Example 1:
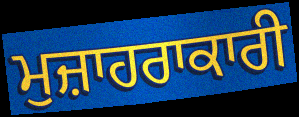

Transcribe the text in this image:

ਮੁਜ਼ਾਹਰਾਕਾਰੀ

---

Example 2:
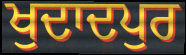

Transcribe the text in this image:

ਖੁਦਾਦਪੁਰ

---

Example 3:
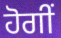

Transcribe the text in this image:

ਹੋਗੀਂ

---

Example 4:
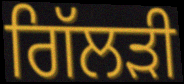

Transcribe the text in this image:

ਗਿੱਲੜੀ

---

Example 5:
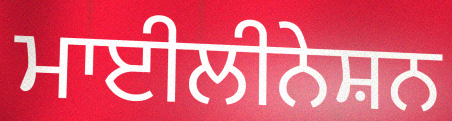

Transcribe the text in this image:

ਮਾਈਲੀਨੇਸ਼ਨ